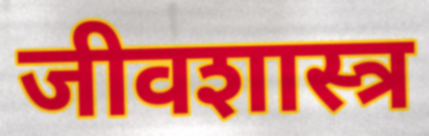
जीवशास्त्र